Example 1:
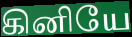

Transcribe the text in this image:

கினியே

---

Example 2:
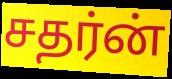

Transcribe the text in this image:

சதர்ன்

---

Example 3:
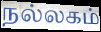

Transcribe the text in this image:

நல்லகம்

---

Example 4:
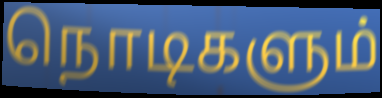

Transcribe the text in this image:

நொடிகளும்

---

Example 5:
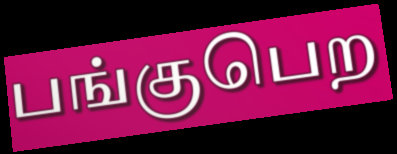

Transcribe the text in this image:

பங்குபெற